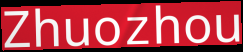
Zhuozhou